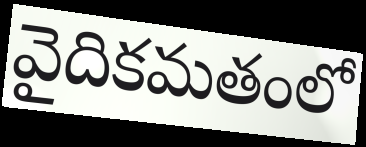
వైదికమతంలో